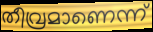
തീവ്രമാണെന്ന്